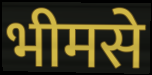
भीमसे